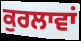
ਕੁਰਲਾਵਾਂ